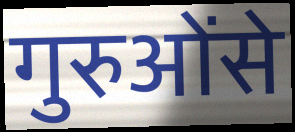
गुरुओंसे